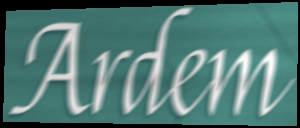
Ardem